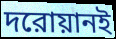
দরোয়ানই